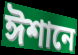
ঈশানে